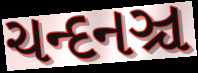
ચન્દનઞ્ચ